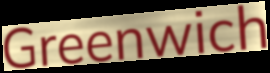
Greenwich